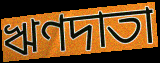
ঋণদাতা